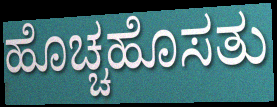
ಹೊಚ್ಚಹೊಸತು